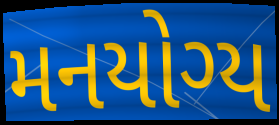
મનયોગ્ય